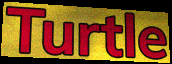
Turtle